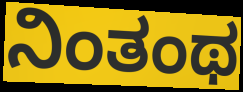
ನಿಂತಂಥ